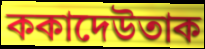
ককাদেউতাক